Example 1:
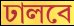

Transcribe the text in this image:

ঢালবে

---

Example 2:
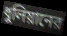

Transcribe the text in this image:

ধুলিয়ানের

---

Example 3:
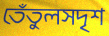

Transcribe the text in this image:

তেঁতুলসদৃশ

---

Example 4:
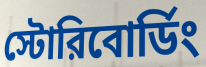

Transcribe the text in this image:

স্টোরিবোর্ডিং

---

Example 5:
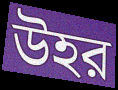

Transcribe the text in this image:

উহর